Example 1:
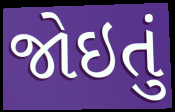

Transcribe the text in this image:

જોઇતું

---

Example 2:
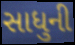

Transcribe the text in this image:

સાધુની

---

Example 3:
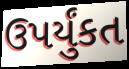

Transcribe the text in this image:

ઉપર્યુંકત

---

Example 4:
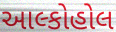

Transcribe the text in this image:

આલ્કોહોલ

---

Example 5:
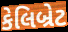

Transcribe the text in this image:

કેલિબ્રેટ